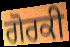
ਗੋਰਕੀ